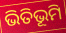
ଭିତିଭୂମି